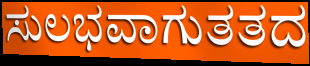
ಸುಲಭವಾಗುತತದ